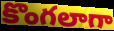
కొంగలాగా